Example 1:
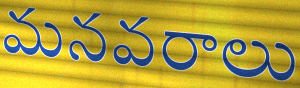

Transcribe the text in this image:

మనవరాలు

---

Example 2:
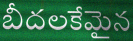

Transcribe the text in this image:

బీదలకేమైన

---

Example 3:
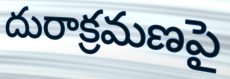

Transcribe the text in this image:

దురాక్రమణపై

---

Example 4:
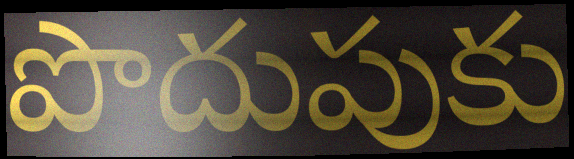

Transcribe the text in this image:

పొదుపుకు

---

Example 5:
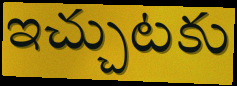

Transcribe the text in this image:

ఇచ్చుటకు